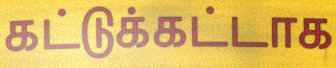
கட்டுக்கட்டாக